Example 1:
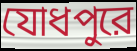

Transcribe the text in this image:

যোধপুরে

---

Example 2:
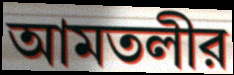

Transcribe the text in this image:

আমতলীর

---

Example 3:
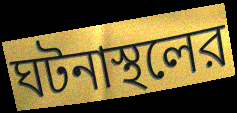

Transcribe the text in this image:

ঘটনাস্থলের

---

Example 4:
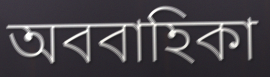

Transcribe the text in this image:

অববাহিকা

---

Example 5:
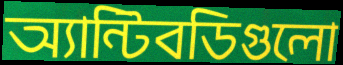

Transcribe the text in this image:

অ্যান্টিবডিগুলো